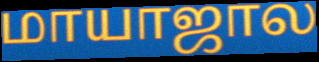
மாயாஜால